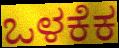
ಒಳಕೆಕ